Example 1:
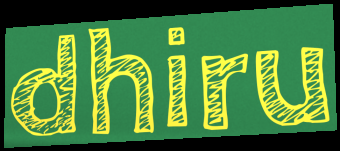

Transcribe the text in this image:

dhiru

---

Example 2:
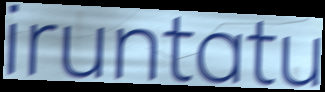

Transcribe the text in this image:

iruntatu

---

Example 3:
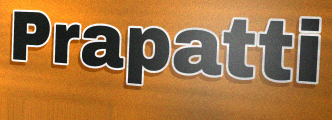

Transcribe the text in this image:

Prapatti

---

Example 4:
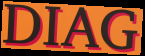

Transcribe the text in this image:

DIAG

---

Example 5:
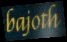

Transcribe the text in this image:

bajoth